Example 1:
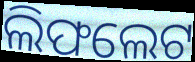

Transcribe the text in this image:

ଲିଫଲେଟ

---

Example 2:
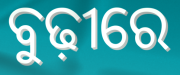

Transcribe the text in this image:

ବୁଢ଼ୀରେ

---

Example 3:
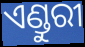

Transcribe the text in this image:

ଏଣ୍ଡୁରୀ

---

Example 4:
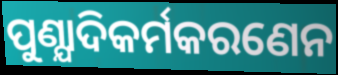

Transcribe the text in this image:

ପୁଣ୍ଯାଦିକର୍ମକରଣେନ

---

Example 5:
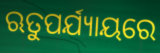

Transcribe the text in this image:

ଋତୁପର୍ଯ୍ୟାୟରେ